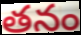
తనం